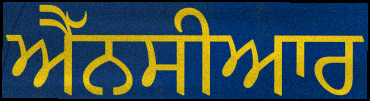
ਐੱਨਸੀਆਰ